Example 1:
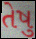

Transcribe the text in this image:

તેષુ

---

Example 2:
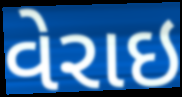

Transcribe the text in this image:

વેરાઇ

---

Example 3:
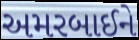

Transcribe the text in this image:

અમરબાઈને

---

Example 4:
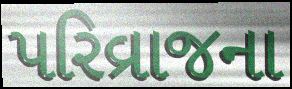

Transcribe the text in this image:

પરિવ્રાજના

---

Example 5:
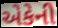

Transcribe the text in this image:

એકેની